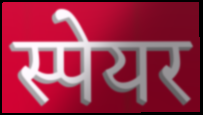
स्पेयर